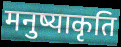
मनुष्याकृति